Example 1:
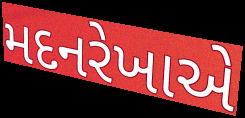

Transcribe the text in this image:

મદનરેખાએ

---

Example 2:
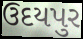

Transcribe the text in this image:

ઉદયપુર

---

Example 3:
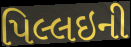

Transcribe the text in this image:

પિલ્લઇની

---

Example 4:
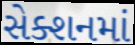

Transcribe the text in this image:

સેક્શનમાં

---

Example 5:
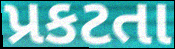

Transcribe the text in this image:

પ્રકટતા